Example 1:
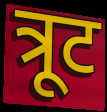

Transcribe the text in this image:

त्रूट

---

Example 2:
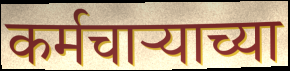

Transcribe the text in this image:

कर्मचाऱ्याच्या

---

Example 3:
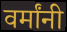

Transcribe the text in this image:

वर्मांनी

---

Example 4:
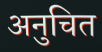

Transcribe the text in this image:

अनुचित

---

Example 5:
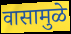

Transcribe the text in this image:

वासामुळे